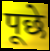
पूछे